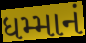
ધમ્માનં